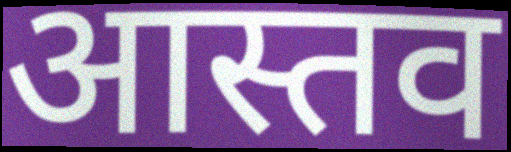
आस्तव